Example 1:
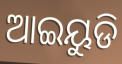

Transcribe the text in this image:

ଆଇୟୁଡି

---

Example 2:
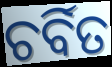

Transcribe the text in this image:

ଚର୍ବିତ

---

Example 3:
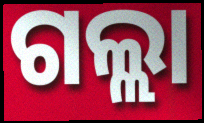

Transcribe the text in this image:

ଗଲ୍ଲା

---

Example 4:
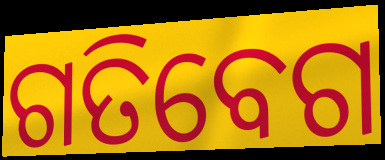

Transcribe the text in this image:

ଗତିବେଗ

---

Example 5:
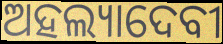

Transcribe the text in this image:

ଅହଲ୍ୟାଦେବୀ